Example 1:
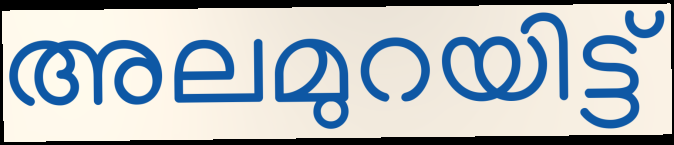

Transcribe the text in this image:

അലമുറയിട്ട്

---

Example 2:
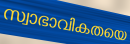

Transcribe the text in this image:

സ്വാഭാവികതയെ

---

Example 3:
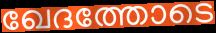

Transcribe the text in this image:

ഖേദത്തോടെ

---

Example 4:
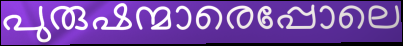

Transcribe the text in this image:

പുരുഷന്മാരെപ്പോലെ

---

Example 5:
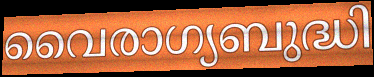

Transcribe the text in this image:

വൈരാഗ്യബുദ്ധി